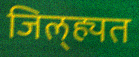
जिल्ह्यत